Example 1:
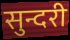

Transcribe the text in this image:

सुन्दरी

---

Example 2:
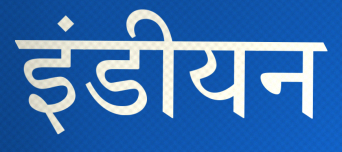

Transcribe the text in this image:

इंडीयन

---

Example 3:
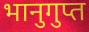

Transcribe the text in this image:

भानुगुप्त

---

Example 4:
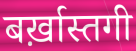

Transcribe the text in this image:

बर्ख़ास्तगी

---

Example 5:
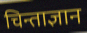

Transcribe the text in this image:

चिन्ताज्ञान